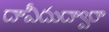
దావీదుద్వారా